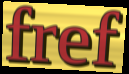
fref